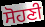
ਸੋਹਣੀ